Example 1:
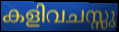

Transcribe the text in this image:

കളിവചസ്സു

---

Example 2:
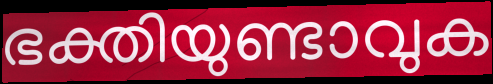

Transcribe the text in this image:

ഭക്തിയുണ്ടാവുക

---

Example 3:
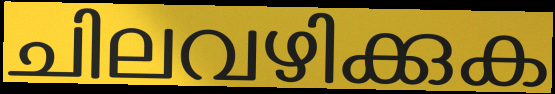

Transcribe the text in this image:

ചിലവഴിക്കുക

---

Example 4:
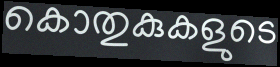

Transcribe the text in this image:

കൊതുകുകളുടെ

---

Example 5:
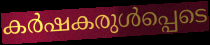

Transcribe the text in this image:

കർഷകരുൾപ്പെടെ